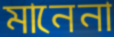
মানেনা